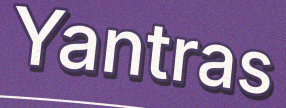
Yantras